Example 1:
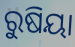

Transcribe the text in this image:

ରୁଷିୟା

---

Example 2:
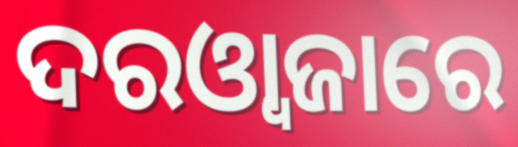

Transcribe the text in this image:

ଦରଓ୍ୱାଜାରେ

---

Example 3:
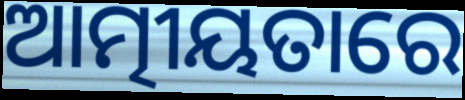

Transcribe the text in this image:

ଆତ୍ମୀୟତାରେ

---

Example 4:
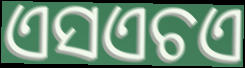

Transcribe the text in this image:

ଏସଏଚଏ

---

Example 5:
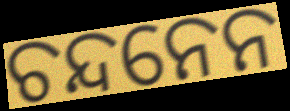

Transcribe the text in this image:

ଚନ୍ଦନେନ